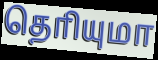
தெரியுமா